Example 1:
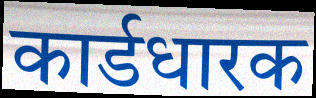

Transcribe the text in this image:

कार्डधारक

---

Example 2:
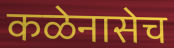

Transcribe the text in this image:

कळेनासेच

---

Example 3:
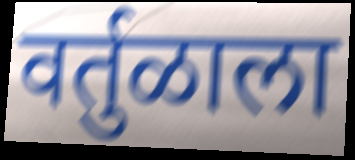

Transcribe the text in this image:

वर्तुळाला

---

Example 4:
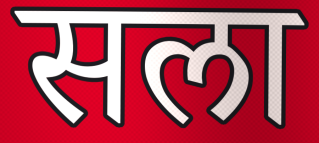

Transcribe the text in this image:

सला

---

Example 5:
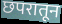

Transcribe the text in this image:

छपरातून